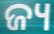
ଜ୍ୟ